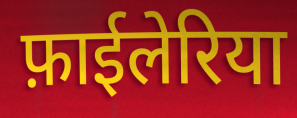
फ़ाईलेरिया